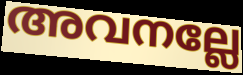
അവനല്ലേ